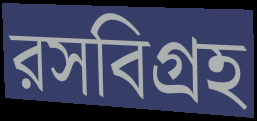
রসবিগ্রহ